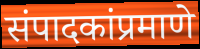
संपादकांप्रमाणे